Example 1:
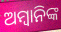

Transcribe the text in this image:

ଅମ୍ବାନିଙ୍କ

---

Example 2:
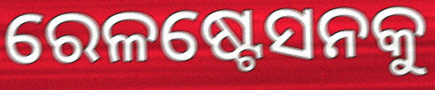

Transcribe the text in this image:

ରେଳଷ୍ଟେସନକୁ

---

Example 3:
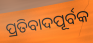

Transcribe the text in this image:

ପ୍ରତିବାଦପୂର୍ବକ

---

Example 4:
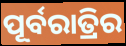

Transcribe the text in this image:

ପୂର୍ବରାତ୍ରିର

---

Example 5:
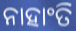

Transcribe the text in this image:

ନାହାଂତି